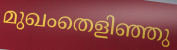
മുഖംതെളിഞ്ഞു